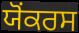
ਯੋੰਕਰਸ